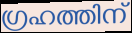
ഗ്രഹത്തിന്